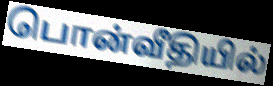
பொன்வீதியில்